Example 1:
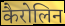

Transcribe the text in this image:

कैरोलिन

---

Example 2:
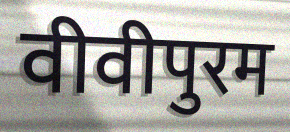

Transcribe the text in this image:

वीवीपुरम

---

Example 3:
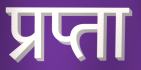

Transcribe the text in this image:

प्रप्ता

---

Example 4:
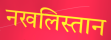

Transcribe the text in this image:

नखलिस्तान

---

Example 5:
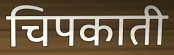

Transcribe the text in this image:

चिपकाती